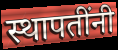
स्थापतींनी